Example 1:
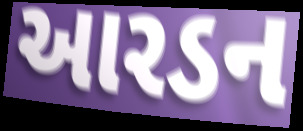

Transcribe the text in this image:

આરડન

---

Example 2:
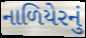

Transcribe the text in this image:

નાળિયેરનું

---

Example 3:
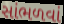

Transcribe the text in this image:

સાંભળવાં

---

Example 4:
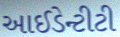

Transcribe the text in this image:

આઈડેન્ટીટી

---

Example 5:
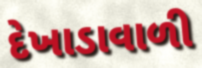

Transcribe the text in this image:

દેખાડાવાળી